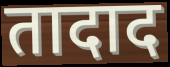
तादाद